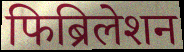
फिब्रिलेशन